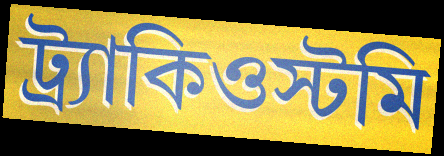
ট্র্যাকিওস্টমি